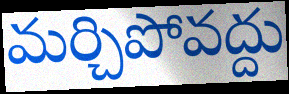
మర్చిపోవద్దు